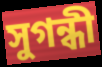
সুগন্ধী